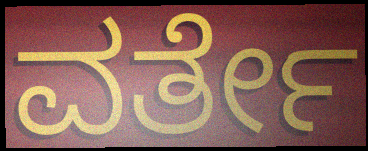
ವರ್ತೇ